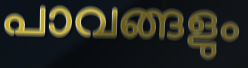
പാവങ്ങളും